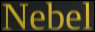
Nebel